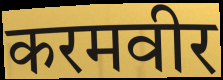
करमवीर